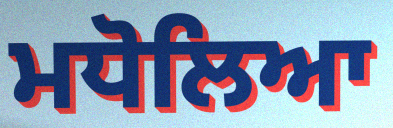
ਮਧੋਲਿਆ